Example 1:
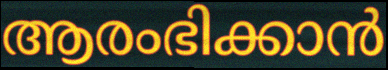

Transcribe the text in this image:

ആരംഭിക്കാൻ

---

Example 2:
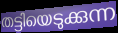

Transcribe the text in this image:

തട്ടിയെടുക്കുന്ന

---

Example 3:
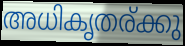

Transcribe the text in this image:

അധികൃതര്ക്കു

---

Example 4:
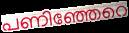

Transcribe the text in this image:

പണിഞ്ഞേറെ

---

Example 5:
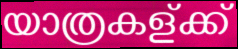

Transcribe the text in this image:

യാത്രകള്ക്ക്